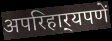
अपरिहार्यपणें